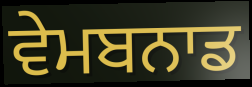
ਵੇਮਬਨਾਡ